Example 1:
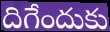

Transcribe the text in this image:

దిగేందుకు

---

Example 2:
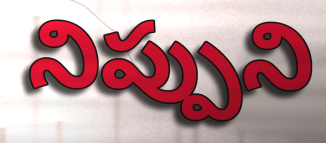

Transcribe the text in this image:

నిప్పుని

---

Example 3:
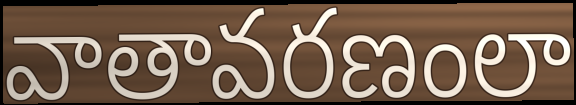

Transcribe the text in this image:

వాతావరణంలా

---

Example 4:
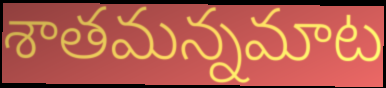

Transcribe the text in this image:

శాతమన్నమాట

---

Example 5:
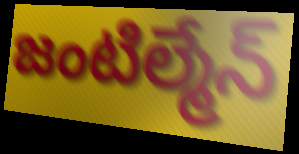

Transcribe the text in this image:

జంటిల్మేన్